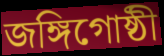
জঙ্গিগোষ্ঠী